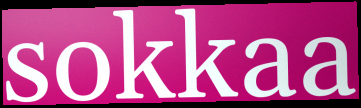
sokkaa